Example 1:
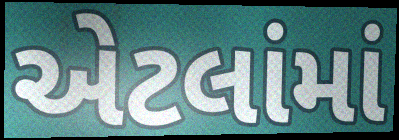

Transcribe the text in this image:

એટલાંમાં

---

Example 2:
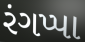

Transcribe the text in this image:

રંગપ્પા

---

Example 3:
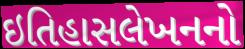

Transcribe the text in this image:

ઇતિહાસલેખનનો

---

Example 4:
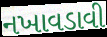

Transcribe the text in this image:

નખાવડાવી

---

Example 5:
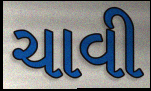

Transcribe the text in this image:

ચાવી